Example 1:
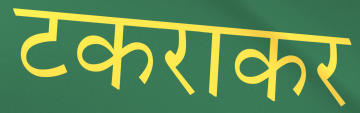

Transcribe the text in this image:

टकराकर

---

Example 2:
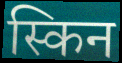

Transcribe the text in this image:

स्किन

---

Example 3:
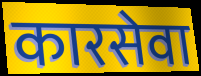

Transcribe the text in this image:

कारसेवा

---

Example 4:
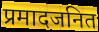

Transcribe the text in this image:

प्रमादजनित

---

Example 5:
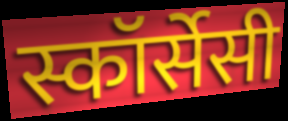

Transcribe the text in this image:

स्कॉर्सेसी